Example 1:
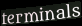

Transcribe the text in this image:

terminals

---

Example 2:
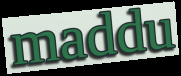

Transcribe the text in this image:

maddu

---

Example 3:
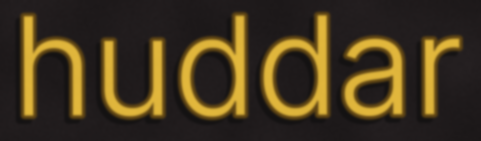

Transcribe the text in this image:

huddar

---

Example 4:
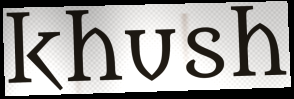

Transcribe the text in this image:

khush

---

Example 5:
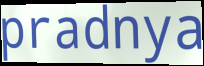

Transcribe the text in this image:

pradnya